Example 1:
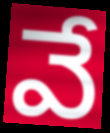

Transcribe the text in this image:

వే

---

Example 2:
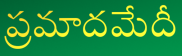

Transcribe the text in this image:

ప్రమాదమేదీ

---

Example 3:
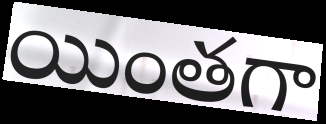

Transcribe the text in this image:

యింతగా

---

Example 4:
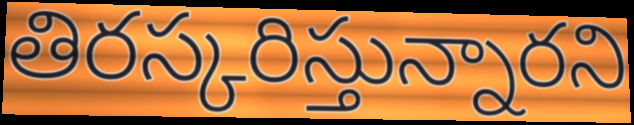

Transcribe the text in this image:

తిరస్కరిస్తున్నారని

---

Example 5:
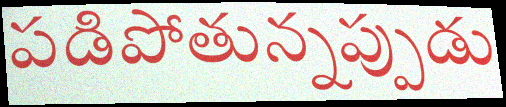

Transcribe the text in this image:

పడిపోతున్నప్పుడు